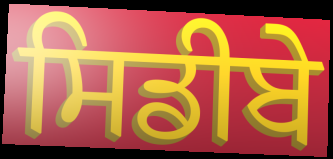
ਸਿਡੀਬੇ